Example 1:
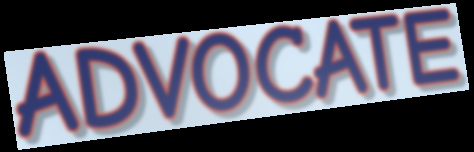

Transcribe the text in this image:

ADVOCATE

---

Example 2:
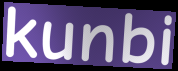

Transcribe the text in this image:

kunbi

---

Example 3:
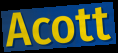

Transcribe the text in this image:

Acott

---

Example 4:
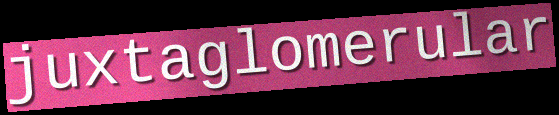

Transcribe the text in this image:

juxtaglomerular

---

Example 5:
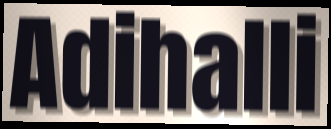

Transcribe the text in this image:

Adihalli